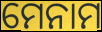
ମେନାମ